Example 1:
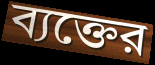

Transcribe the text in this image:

ব্যক্তের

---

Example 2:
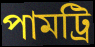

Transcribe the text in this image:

পামট্রি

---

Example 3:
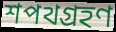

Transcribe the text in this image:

শপথগ্রহণ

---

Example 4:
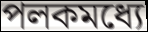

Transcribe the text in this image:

পলকমধ্যে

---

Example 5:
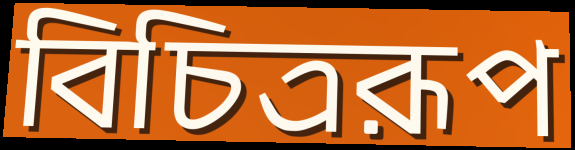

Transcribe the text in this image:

বিচিত্ররূপ